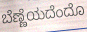
ಬೆಣ್ಣೆಯದೆಂದೊ